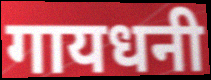
गायधनी